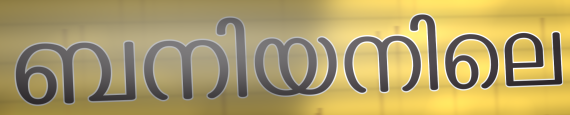
ബനിയനിലെ